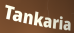
Tankaria